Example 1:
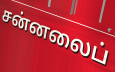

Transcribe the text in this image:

சன்னலைப்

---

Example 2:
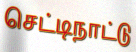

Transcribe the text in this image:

செட்டிநாட்டு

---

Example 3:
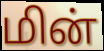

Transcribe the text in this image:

மின்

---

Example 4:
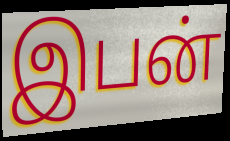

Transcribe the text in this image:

இபன்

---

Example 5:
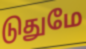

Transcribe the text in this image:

டுதுமே